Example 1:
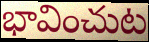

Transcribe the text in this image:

భావించుట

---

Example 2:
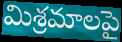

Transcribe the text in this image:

మిశ్రమాలపై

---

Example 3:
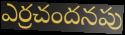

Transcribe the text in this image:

ఎర్రచందనపు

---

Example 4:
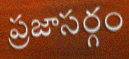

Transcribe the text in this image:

ప్రజాసర్గం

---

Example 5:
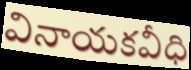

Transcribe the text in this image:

వినాయకవీధి